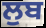
ਲੁਬ